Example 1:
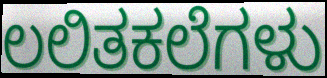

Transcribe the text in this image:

ಲಲಿತಕಲೆಗಳು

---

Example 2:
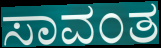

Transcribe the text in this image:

ಸಾವಂತ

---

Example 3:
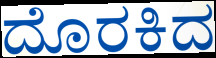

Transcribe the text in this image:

ದೊರಕಿದ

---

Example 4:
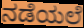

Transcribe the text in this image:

ನಡೆಯಲೆ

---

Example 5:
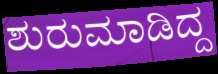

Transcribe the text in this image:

ಶುರುಮಾಡಿದ್ದ